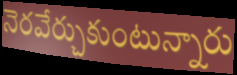
నెరవేర్చుకుంటున్నారు